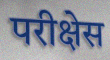
परीक्षेस